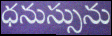
ధనుస్సును